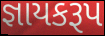
જ્ઞાયકરૂપ